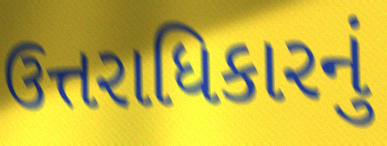
ઉત્તરાધિકારનું